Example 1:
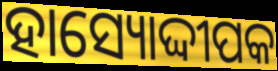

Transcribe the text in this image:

ହାସ୍ୟୋଦ୍ଦୀପକ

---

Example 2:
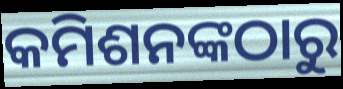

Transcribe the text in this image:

କମିଶନଙ୍କଠାରୁ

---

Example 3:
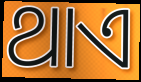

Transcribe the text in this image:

ଥାଏ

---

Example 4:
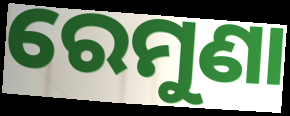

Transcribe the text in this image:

ରେମୁଣା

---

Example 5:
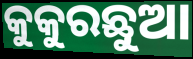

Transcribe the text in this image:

କୁକୁରଛୁଆ